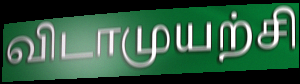
விடாமுயற்சி